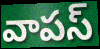
వాపస్